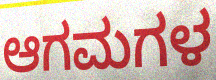
ಆಗಮಗಳ